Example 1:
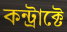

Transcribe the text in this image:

কন্ট্রাক্টে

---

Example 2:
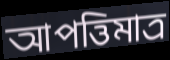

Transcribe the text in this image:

আপত্তিমাত্র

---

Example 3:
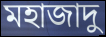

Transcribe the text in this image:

মহাজাদু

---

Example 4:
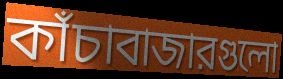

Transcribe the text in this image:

কাঁচাবাজারগুলো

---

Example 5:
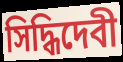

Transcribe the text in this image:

সিদ্ধিদেবী